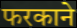
फरकाने